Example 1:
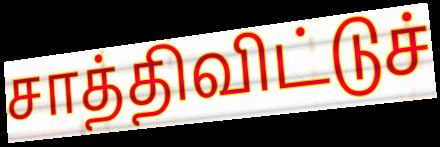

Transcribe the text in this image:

சாத்திவிட்டுச்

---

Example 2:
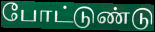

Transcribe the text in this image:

போட்டுண்டு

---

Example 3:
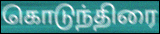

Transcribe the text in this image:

கொடுந்திரை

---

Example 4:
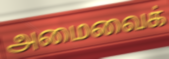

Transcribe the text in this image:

அமைவைக்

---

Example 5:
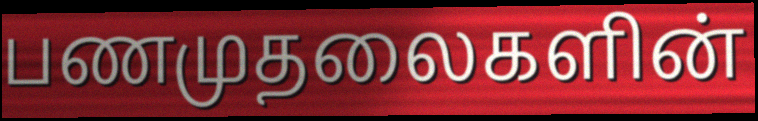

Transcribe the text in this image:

பணமுதலைகளின்